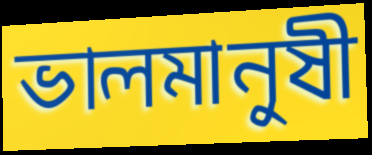
ভালমানুষী